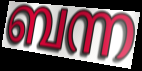
ബന്ന